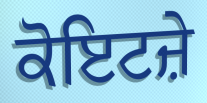
ਕੋਇਟਜ਼ੇ